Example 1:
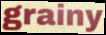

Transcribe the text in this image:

grainy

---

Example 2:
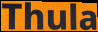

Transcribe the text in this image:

Thula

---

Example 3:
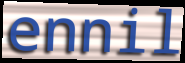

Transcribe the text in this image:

ennil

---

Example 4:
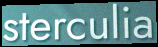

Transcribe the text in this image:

sterculia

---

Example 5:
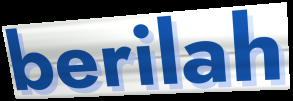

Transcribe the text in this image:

berilah